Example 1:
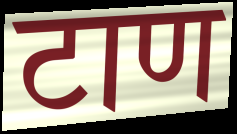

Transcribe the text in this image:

टाण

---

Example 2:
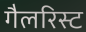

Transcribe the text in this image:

गैलरिस्ट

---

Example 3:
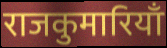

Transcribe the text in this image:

राजकुमारियाँ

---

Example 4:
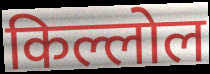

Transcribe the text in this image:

किल्लोल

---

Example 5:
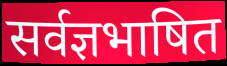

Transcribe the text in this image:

सर्वज्ञभाषित